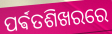
ପର୍ଵତଶିଖରରେ